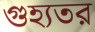
গুহ্যতর